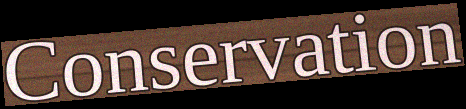
Conservation